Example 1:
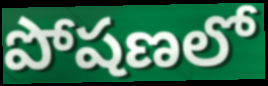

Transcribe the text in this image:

పోషణలో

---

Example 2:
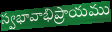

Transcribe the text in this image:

స్వభావాభిప్రాయము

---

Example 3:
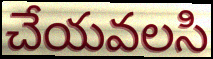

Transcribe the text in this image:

చేయవలసి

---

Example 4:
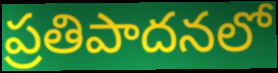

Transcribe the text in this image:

ప్రతిపాదనలో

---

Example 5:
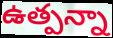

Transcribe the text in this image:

ఉత్పన్నా